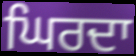
ਘਿਰਦਾ